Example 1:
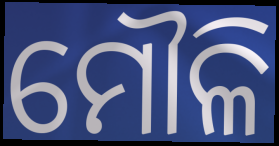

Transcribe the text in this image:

ମୌଳି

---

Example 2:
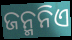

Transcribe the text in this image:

ଜନ୍ମନିଏ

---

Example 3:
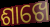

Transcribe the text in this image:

ଶାଖେ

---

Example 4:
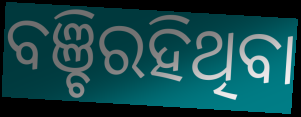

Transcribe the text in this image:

ବଞ୍ଚିରହିଥିବା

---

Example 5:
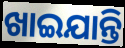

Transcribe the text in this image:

ଖାଇଯାନ୍ତି